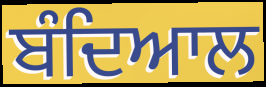
ਬੰਦਿਆਲ